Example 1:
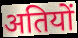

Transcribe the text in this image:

अतियों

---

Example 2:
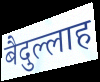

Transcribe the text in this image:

बैदुल्लाह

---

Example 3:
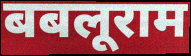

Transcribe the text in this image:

बबलूराम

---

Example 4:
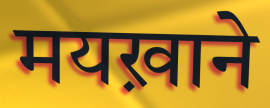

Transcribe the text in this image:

मयख़ाने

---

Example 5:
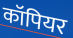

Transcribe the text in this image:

कॉपियर